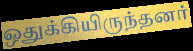
ஒதுக்கியிருந்தனர்